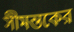
সীমন্তকের